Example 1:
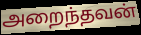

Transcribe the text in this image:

அறைந்தவன்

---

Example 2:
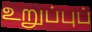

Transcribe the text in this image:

உறுப்புப்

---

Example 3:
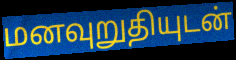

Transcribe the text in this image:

மனவுறுதியுடன்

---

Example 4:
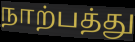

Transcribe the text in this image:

நாற்பத்து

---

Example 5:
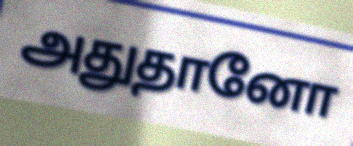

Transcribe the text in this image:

அதுதானோ